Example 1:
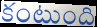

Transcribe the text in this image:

కంటుంది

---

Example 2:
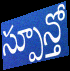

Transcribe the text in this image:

స్పూన్తో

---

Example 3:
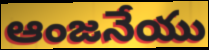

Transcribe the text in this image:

ఆంజనేయు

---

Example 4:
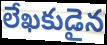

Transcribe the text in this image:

లేఖకుడైన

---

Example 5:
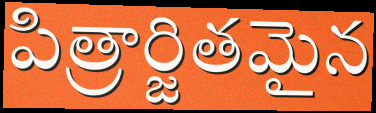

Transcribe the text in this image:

పిత్రార్జితమైన